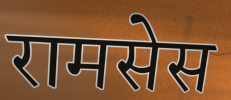
रामसेस